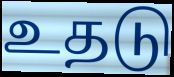
உதடு